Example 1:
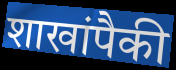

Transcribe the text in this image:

शाखांपैकी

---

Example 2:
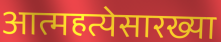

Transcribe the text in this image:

आत्महत्येसारख्या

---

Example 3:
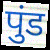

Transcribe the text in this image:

पुंड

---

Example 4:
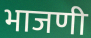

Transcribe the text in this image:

भाजणी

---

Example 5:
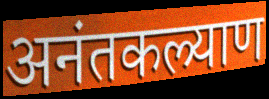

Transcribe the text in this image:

अनंतकल्याण